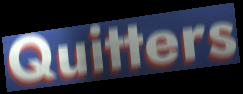
Quitters